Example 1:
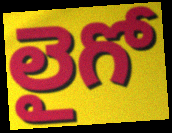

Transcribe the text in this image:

లైగో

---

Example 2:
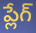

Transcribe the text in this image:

ప్లేగ్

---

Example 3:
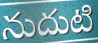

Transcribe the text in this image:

నుదుటి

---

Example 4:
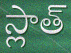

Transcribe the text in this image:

స్లాత్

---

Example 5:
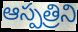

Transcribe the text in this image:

ఆస్పత్రిని